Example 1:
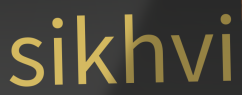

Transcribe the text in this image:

sikhvi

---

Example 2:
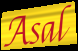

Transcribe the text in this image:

Asal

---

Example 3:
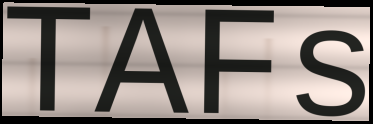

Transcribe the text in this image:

TAFs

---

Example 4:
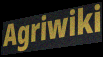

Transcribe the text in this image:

Agriwiki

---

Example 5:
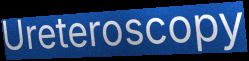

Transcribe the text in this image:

Ureteroscopy